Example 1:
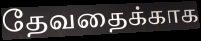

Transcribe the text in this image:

தேவதைக்காக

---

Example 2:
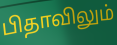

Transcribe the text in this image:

பிதாவிலும்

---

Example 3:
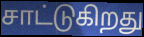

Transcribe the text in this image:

சாட்டுகிறது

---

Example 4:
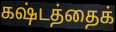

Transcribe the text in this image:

கஷ்டத்தைக்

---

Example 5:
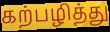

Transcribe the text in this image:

கற்பழித்து